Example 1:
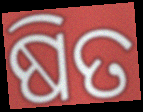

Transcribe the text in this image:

ଷିତ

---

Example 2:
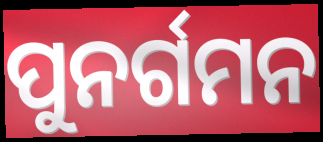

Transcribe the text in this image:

ପୁନର୍ଗମନ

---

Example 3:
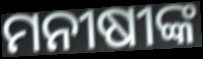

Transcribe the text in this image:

ମନୀଷୀଙ୍କ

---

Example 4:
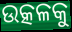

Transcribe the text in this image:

ଉତ୍କଳକୁ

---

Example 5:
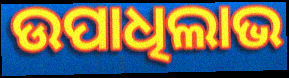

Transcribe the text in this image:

ଉପାଧିଲାଭ